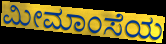
ಮೀಮಾಂಸೆಯ